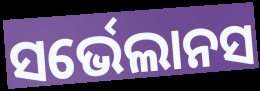
ସର୍ଭେଲାନସ